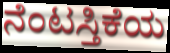
ನೆಂಟಸ್ತಿಕೆಯ